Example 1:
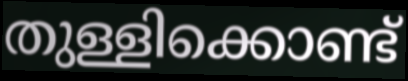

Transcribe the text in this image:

തുള്ളിക്കൊണ്ട്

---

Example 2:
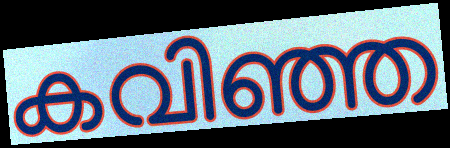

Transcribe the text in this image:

കവിഞ്ഞ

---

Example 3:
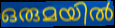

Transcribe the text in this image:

ഒരുമയിൽ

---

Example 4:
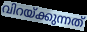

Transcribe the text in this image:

വിറയ്ക്കുന്നത്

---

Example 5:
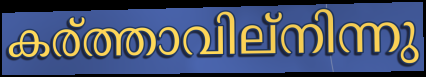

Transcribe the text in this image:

കര്ത്താവില്നിന്നു